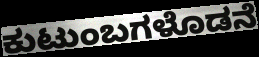
ಕುಟುಂಬಗಳೊಡನೆ